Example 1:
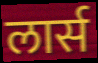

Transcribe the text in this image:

लार्स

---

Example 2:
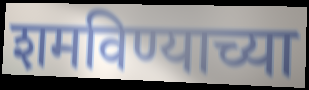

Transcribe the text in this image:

शमविण्याच्या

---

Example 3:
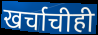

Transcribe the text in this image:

खर्चाचीही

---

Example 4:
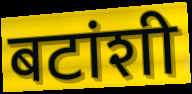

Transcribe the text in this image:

बटांशी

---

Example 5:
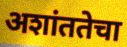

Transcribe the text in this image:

अशांततेचा